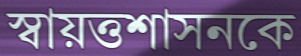
স্বায়ত্তশাসনকে